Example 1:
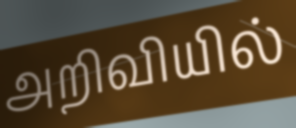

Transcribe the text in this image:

அறிவியில்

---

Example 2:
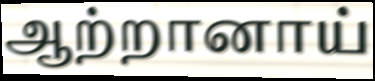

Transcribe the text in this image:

ஆற்றானாய்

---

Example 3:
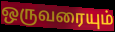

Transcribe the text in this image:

ஒருவரையும்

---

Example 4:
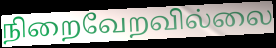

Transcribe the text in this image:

நிறைவேறவில்லை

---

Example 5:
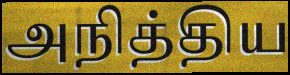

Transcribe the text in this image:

அநித்திய